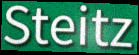
Steitz